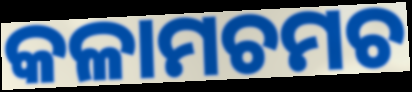
କଳାମଚମଚ